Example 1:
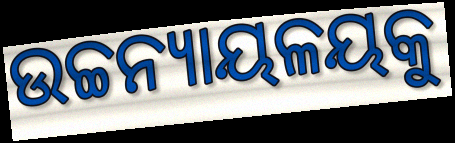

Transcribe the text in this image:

ଉଚ୍ଚନ୍ୟାୟଳୟକୁ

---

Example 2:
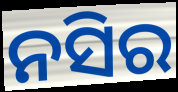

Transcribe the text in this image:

ନସିର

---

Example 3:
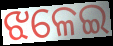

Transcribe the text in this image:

ଝଳେଇ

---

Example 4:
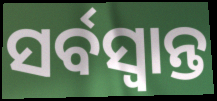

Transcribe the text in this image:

ସର୍ବସ୍ୱାନ୍ତ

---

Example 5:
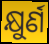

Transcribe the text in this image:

କ୍ଷୁର୍ଣ